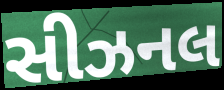
સીઝનલ